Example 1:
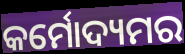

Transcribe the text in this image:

କର୍ମୋଦ୍ୟମର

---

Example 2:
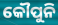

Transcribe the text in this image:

କୌପୁନି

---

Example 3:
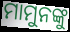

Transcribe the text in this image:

ମାମୁନଙ୍କୁ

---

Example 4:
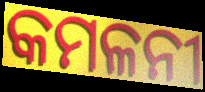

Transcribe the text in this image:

କମଳନୀ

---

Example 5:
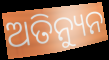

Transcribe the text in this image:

ଅତିନ୍ୟୁନ